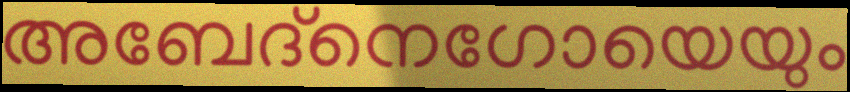
അബേദ്നെഗോയെയും